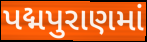
પદ્મપુરાણમાં